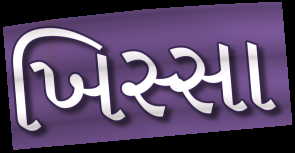
ખિસ્સા